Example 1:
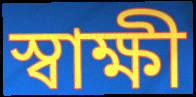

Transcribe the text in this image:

স্বাক্ষী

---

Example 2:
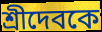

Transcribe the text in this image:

শ্রীদেবকে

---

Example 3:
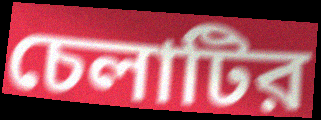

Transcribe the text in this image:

চেলাটির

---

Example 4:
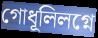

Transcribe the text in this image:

গোধূলিলগ্নে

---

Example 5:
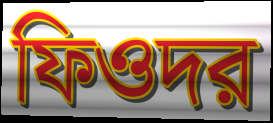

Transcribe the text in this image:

ফিওদর